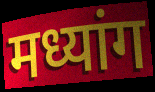
मध्यांग